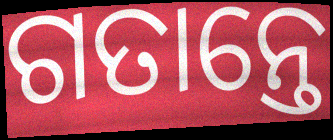
ଗତାନ୍ତେ